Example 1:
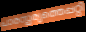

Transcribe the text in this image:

പാരസ്പര്യത്തെപ്പറ്റി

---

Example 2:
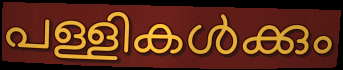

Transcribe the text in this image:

പള്ളികൾക്കും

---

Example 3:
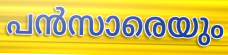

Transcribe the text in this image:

പൻസാരെയും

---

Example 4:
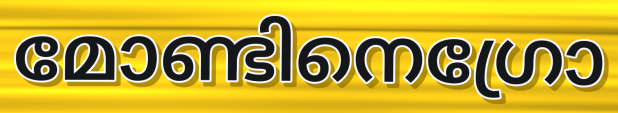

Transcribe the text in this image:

മോണ്ടിനെഗ്രോ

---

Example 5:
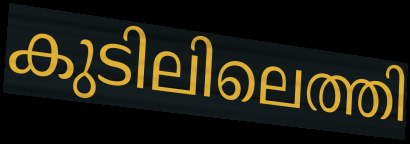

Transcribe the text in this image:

കുടിലിലെത്തി